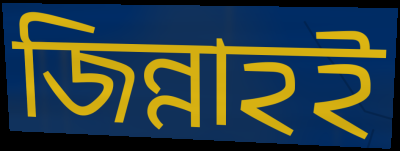
জিন্নাহই